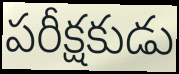
పరీక్షకుడు